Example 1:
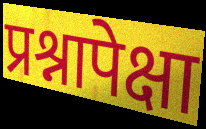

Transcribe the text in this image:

प्रश्नापेक्षा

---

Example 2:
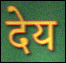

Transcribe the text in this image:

देय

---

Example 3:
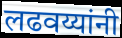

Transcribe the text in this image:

लढवय्यांनी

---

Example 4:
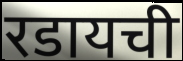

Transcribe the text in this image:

रडायची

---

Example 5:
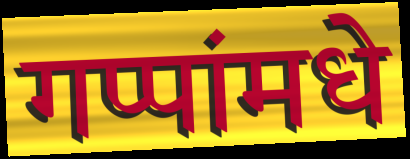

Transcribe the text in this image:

गप्पांमधे